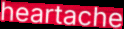
heartache